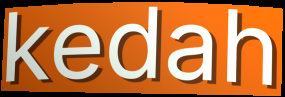
kedah